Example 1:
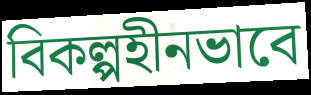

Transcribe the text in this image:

বিকল্পহীনভাবে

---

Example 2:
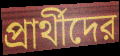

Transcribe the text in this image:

প্রার্থীদের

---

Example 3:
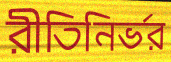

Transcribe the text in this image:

রীতিনির্ভর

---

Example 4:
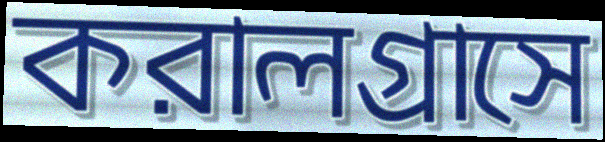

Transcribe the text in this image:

করালগ্রাসে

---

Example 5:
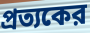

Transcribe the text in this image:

প্রত্যকের